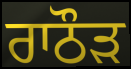
ਰਾਠੌੜ